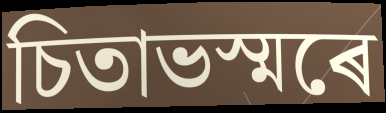
চিতাভস্মৰে